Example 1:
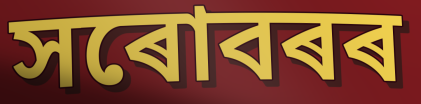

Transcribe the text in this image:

সৰোবৰৰ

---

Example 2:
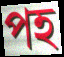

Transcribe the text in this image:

পহ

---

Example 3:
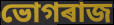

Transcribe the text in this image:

ভোগৰাজ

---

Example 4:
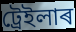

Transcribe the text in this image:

ট্ৰেইলাৰ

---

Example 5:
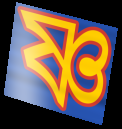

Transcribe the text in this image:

ষ্ণ